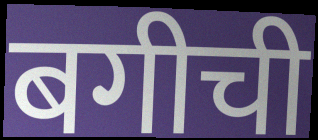
बगीची